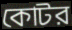
কোটর